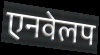
एनवेलप